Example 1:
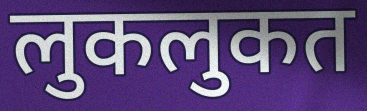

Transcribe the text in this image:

लुकलुकत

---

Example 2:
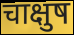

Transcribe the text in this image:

चाक्षुष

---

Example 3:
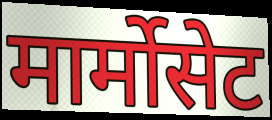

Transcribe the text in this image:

मार्मोसेट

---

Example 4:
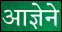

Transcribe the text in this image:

आज्ञेने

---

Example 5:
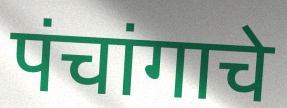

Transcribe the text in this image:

पंचांगाचे